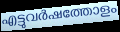
എട്ടുവർഷത്തോളം